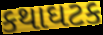
કથાઘટક